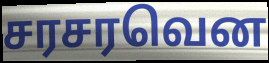
சரசரவென